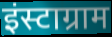
इंस्टाग्राम